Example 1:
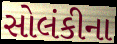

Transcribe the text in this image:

સોલંકીના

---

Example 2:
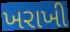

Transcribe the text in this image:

ખરાખી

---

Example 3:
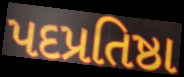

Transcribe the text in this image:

પદપ્રતિષ્ઠા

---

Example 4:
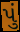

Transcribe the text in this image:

પું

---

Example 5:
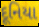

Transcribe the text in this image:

દૂનિયા